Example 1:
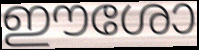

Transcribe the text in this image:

ഈശോ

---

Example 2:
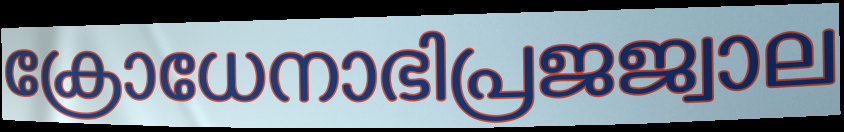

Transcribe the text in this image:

ക്രോധേനാഭിപ്രജജ്വാല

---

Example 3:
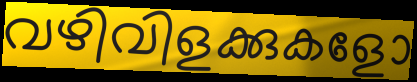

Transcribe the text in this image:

വഴിവിളക്കുകളോ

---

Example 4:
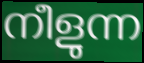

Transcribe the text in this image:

നീളുന്ന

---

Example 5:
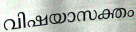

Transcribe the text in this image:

വിഷയാസക്തം